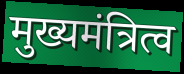
मुख्यमंत्रित्व